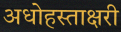
अधोहस्ताक्षरी